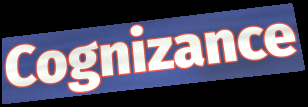
Cognizance